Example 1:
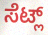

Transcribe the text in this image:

ಸೆಟ್ಲ್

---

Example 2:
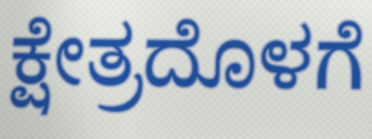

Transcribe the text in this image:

ಕ್ಷೇತ್ರದೊಳಗೆ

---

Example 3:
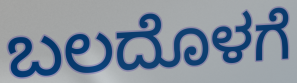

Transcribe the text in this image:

ಬಲದೊಳಗೆ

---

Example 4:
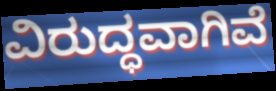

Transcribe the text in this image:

ವಿರುದ್ಧವಾಗಿವೆ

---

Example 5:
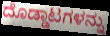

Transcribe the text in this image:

ದೊಡ್ಡಾಟಗಳನ್ನು